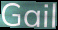
Gail